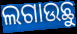
ଲଗାଉଛୁ